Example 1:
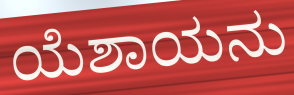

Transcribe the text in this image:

ಯೆಶಾಯನು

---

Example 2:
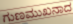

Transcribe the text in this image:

ಗುಣಮುಖನಾದ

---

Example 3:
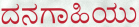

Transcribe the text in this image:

ದನಗಾಹಿಯು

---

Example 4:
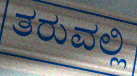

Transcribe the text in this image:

ತರುವಲ್ಲಿ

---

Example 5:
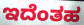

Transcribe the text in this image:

ಇದೆಂತಹ